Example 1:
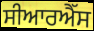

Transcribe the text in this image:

ਸੀਆਰਐੱਸ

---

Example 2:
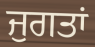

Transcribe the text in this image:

ਜੁਗਤਾਂ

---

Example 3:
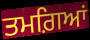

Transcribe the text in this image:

ਤਮਗ਼ਿਆਂ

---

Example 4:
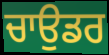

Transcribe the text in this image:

ਚਾਉਡਰ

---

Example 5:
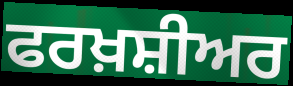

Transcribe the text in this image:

ਫਰਖ਼ਸ਼ੀਅਰ